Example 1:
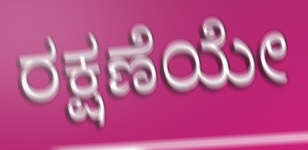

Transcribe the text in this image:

ರಕ್ಷಣೆಯೇ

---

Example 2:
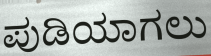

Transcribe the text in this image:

ಪುಡಿಯಾಗಲು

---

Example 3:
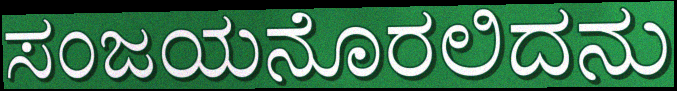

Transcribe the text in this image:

ಸಂಜಯನೊರಲಿದನು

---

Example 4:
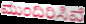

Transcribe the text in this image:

ಮುಂದಿರಿಸಿವೆ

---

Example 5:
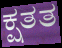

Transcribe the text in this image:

ಕ್ಷತತ